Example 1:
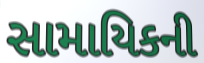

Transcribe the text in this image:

સામાયિકની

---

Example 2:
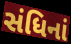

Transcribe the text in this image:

સંધિનાં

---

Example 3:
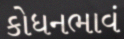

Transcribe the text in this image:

કોધનભાવં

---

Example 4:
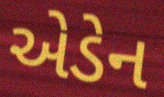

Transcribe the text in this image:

એડેન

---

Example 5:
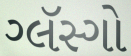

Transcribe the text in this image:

ગ્લૅસ્ગો